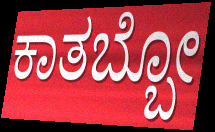
ಕಾತಬ್ಬೋ